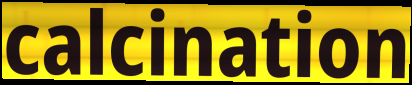
calcination